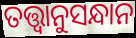
ତତ୍ତ୍ବାନୁସନ୍ଧାନ